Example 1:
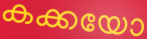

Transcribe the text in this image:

കക്കയോ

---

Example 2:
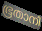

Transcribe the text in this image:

ഭൂതാനി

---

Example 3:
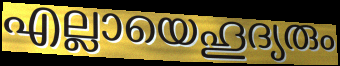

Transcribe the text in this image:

എല്ലായെഹൂദ്യരും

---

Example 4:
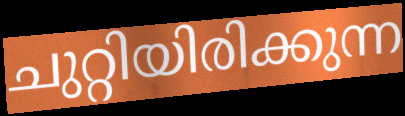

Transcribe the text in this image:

ചുറ്റിയിരിക്കുന്ന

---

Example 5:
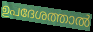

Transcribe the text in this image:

ഉപദേശത്താൽ